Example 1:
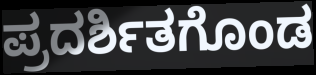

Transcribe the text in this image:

ಪ್ರದರ್ಶಿತಗೊಂಡ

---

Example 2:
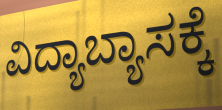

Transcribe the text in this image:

ವಿದ್ಯಾಬ್ಯಾಸಕ್ಕೆ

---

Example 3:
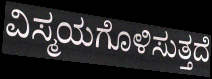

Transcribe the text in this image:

ವಿಸ್ಮಯಗೊಳಿಸುತ್ತದೆ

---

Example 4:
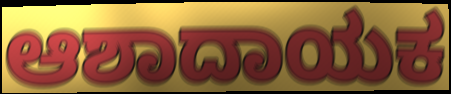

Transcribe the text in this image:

ಆಶಾದಾಯಕ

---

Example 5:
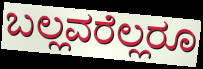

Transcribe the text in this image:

ಬಲ್ಲವರೆಲ್ಲರೂ